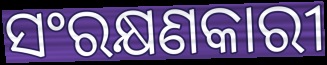
ସଂରକ୍ଷଣକାରୀ